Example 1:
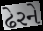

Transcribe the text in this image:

ઢેરને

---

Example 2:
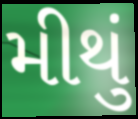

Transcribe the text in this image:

મીથું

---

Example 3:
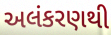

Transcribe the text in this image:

અલંકરણથી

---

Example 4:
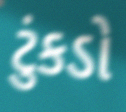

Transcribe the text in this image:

ટુંકડો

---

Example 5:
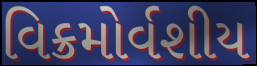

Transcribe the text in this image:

વિક્રમોર્વશીય